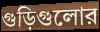
গুড়িগুলোর